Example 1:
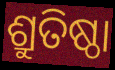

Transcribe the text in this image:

ଶ୍ରୁତିଷ୍ଠା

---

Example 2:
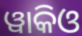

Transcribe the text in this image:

ୱାକିଓ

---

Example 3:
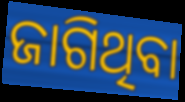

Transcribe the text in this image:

ଜାଗିଥିବା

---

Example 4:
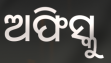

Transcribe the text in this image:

ଅଫିସ୍କୁ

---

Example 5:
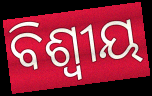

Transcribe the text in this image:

ବିଶ୍ଵୀୟ